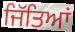
ਜਿੱਤਿਆਂ